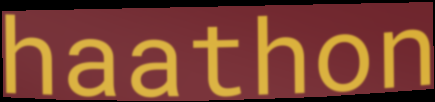
haathon